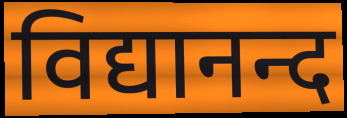
विद्यानन्द